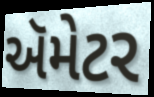
ઍમેટર